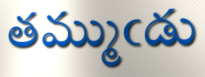
తమ్ముఁడు